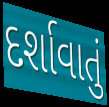
દર્શાવાતું